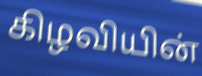
கிழவியின்